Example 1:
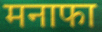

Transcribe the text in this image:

मनाफा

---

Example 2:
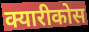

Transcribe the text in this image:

क्यारीकोस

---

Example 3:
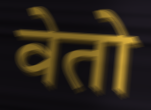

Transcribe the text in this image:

वेतो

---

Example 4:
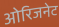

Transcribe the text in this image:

ओरिजनेट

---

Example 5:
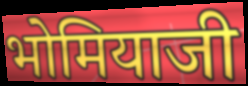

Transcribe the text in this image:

भोमियाजी